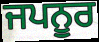
ਜਪਨੂਰ